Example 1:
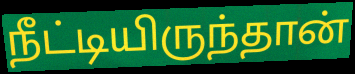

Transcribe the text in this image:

நீட்டியிருந்தான்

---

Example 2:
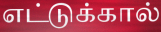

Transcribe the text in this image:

எட்டுக்கால்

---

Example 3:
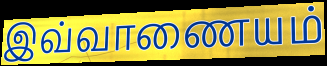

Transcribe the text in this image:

இவ்வாணையம்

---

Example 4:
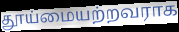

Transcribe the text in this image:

தூய்மையற்றவராக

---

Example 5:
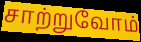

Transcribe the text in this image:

சாற்றுவோம்